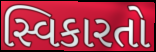
સ્વિકારતો